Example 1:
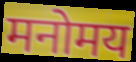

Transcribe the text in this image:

मनोमय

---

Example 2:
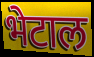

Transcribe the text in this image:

भेटाल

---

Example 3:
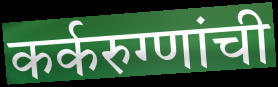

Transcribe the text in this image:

कर्करुग्णांची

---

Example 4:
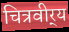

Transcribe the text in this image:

चित्रवीर्य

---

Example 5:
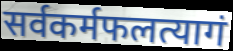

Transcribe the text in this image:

सर्वकर्मफलत्यागं